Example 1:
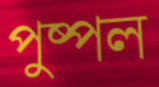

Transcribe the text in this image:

পুষ্পল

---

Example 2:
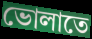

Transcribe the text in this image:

ভোলাতে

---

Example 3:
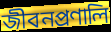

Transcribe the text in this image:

জীবনপ্রণালি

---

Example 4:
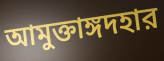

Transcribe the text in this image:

আমুক্তাঙ্গদহার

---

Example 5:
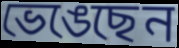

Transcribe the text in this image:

ভেঙেছেন